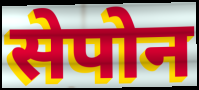
सेपोन